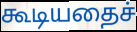
கூடியதைச்